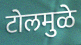
टोलमुळे